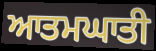
ਆਤਮਘਾਤੀ